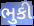
ભુકી